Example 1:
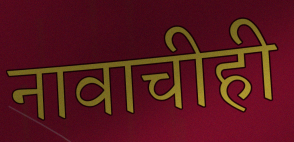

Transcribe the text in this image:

नावाचीही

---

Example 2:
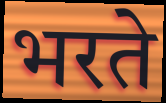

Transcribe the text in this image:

भरते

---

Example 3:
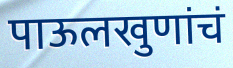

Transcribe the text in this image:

पाऊलखुणांचं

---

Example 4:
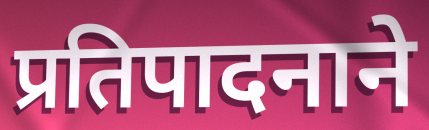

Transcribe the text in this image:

प्रतिपादनाने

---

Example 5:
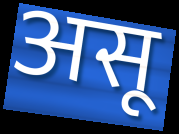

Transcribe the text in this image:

असू